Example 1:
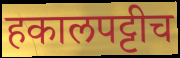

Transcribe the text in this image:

हकालपट्टीच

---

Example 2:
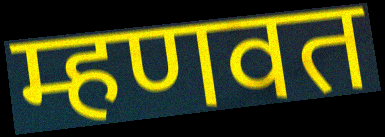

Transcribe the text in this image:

म्हणवत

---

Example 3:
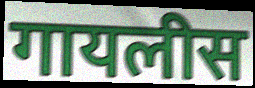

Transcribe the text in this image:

गायलीस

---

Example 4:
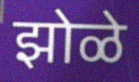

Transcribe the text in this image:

झोळे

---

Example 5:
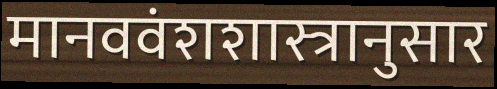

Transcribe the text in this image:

मानववंशशास्त्रानुसार